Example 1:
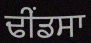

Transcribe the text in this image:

ਢੀੰਂਡਸਾ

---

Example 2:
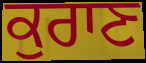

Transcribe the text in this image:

ਕੁਰਾਣ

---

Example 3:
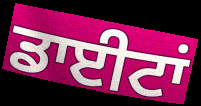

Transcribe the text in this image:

ਡਾਈਟਾਂ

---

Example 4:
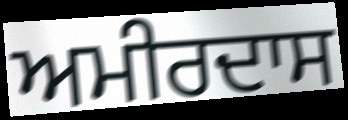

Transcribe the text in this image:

ਅਮੀਰਦਾਸ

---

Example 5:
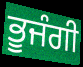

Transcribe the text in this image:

ਭੂਜੰਗੀ